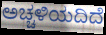
ಅಚ್ಚಳಿಯದಿದೆ